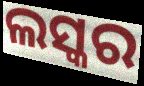
ଲସ୍କର